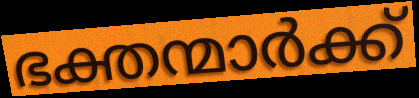
ഭക്തന്മാർക്ക്